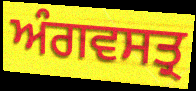
ਅੰਗਵਸਤ੍ਰ